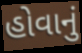
હોવાનું